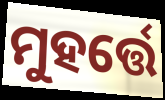
ମୁହର୍ତ୍ତେ